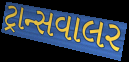
ટ્રાન્સવાલર